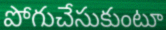
పోగుచేసుకుంటూ